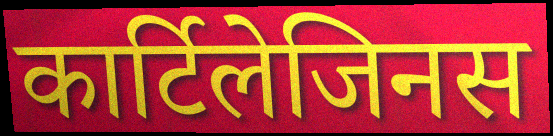
कार्टिलेजिनस